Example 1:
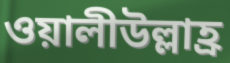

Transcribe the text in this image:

ওয়ালীউল্লাহ্র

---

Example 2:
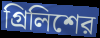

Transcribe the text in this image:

গ্রিলিশের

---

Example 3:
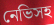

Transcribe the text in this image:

নেভিসহ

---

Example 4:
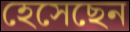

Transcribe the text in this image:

হেসেছেন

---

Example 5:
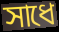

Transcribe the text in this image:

সাধে